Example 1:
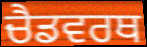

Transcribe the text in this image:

ਚੈਡਵਰਥ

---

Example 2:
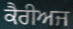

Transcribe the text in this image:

ਕੈਰੀਅਜ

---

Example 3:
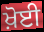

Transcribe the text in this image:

ਖ਼ੋਈ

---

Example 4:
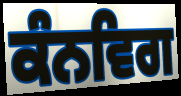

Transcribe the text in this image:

ਕੰਨਵਿਗ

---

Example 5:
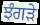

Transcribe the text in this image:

ਝੰਗੜੇ